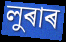
লুৰাৰ